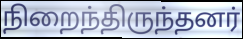
நிறைந்திருந்தனர்